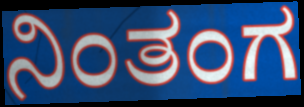
ನಿಂತಂಗ